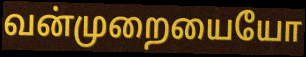
வன்முறையையோ